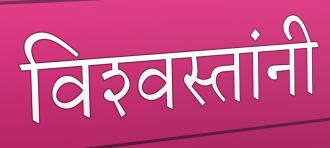
विश्वस्तांनी